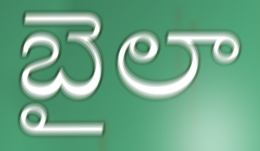
బైలా